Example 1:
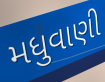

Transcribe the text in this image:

મધુવાણી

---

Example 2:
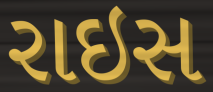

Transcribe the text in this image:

રાઇસ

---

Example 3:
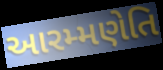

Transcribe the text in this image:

આરમ્મણેતિ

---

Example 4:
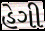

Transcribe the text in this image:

હેગી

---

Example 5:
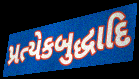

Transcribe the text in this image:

પ્રત્યેકબુદ્ધાદિ